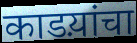
काडय़ांचा